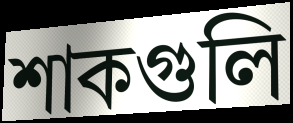
শাকগুলি